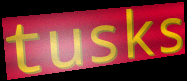
tusks